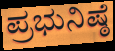
ಪ್ರಭುನಿಷ್ಠೆ